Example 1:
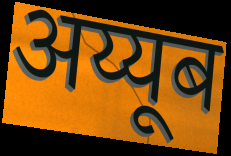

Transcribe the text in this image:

अय्यूब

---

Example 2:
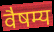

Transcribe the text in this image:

वैषम्‍य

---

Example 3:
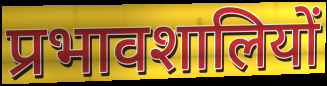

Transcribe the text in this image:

प्रभावशालियों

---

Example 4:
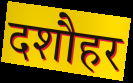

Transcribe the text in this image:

दशौहर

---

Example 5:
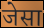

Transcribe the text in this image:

जेसा